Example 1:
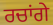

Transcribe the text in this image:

ਰਚਾਂਗੇ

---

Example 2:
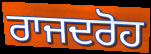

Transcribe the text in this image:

ਰਾਜਦਰੋਹ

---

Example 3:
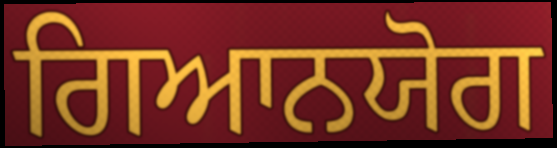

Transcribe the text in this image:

ਗਿਆਨਯੋਗ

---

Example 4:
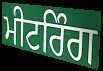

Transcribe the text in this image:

ਮੀਟਰਿੰਗ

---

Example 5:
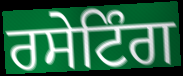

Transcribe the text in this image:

ਰਸੇਟਿੰਗ